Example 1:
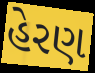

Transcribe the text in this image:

હેરણ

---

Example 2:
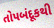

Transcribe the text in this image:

તોપબંદૂકથી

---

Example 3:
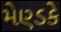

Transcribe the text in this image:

મેણ્ડકે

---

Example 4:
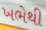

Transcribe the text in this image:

ખભેથી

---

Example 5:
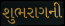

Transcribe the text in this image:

શુભરાગની